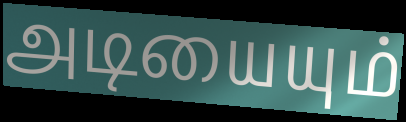
அடியையும்